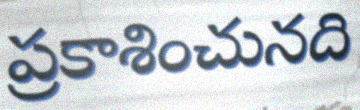
ప్రకాశించునది